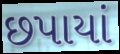
છપાયાં